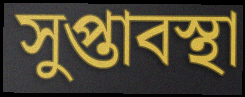
সুপ্তাবস্থা